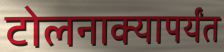
टोलनाक्यापर्यंत